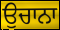
ਉਚਾਨਾ